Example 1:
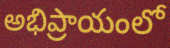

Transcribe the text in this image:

అభిప్రాయంలో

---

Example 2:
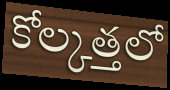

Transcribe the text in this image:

కోల్కత్తలో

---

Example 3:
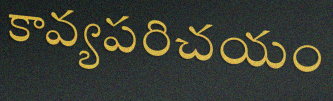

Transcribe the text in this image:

కావ్యపరిచయం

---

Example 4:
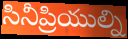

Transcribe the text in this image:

సినీప్రియుల్ని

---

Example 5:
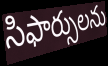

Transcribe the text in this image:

సిఫార్సులను